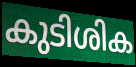
കുടിശിക